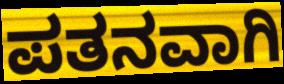
ಪತನವಾಗಿ